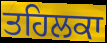
ਤਹਿਲਕਾ